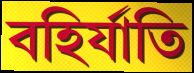
বহির্যাতি